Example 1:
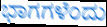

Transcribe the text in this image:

ಭಾಗಗಳೆಂದು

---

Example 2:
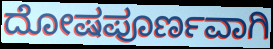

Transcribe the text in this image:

ದೋಷಪೂರ್ಣವಾಗಿ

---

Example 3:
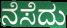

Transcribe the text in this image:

ನೆಸೆದು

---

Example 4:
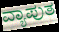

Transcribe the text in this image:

ವ್ಯಾಪುತ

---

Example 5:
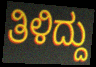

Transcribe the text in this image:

ತಿಳಿದ್ದು